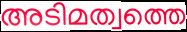
അടിമത്വത്തെ